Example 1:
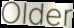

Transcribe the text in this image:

Older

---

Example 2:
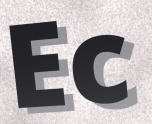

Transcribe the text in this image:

Ec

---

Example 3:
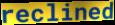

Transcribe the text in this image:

reclined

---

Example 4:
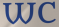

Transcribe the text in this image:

wc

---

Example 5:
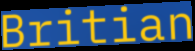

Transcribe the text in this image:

Britian